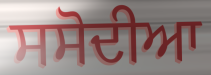
ਸਸੋਦੀਆ